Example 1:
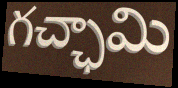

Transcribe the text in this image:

గచ్ఛామి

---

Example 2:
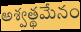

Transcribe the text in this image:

అశ్వత్థమేనం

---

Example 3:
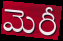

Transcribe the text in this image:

మెరీ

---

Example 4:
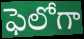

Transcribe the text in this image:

ఫెలోగా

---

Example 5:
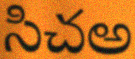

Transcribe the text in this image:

సిచఅ